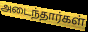
அடைந்தார்கள்